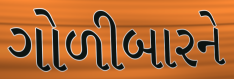
ગોળીબારને